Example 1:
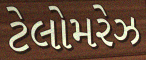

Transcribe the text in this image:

ટેલોમરેઝ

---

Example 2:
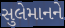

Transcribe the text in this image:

સુલેમાનને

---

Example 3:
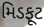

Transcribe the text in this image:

મિડફૂટ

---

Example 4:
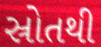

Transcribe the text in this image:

સ્રોતથી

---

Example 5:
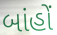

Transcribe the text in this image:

બાંહોં